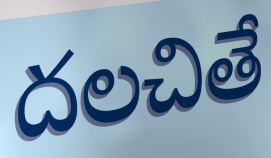
దలచితే